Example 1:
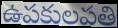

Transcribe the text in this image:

ఉపకులపతి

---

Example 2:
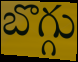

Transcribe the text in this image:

బొగ్గు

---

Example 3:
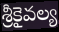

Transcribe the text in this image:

శ్రీకైవల్య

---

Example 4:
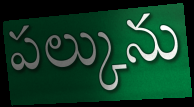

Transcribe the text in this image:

పల్కును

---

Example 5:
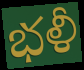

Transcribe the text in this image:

భళీ